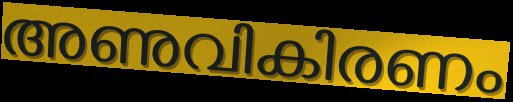
അണുവികിരണം